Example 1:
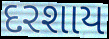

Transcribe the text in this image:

દરશાય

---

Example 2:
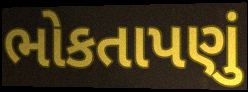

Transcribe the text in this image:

ભોકતાપણું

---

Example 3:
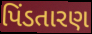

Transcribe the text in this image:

પિંડતારણ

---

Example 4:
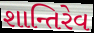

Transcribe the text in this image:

શાન્તિરેવ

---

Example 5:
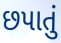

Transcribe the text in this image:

છપાતું